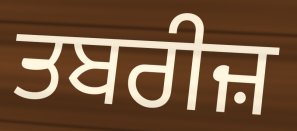
ਤਬਰੀਜ਼